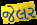
જેલર